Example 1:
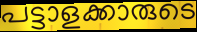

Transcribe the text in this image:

പട്ടാളക്കാരുടെ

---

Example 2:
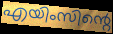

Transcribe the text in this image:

എയിംസിന്റെ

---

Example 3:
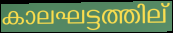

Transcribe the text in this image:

കാലഘട്ടത്തില്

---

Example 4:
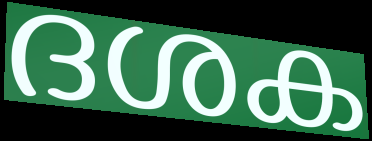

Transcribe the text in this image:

ദശക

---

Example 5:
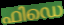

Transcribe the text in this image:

ഫിഡെ